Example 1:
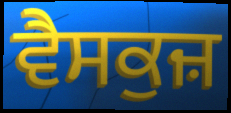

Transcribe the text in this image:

ਵੈਸਕੁਜ਼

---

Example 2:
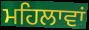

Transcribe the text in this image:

ਮਹਿਲਾਵਾਂ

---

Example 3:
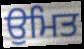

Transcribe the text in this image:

ਉਮਿਤ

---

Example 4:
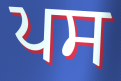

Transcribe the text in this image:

ਪਸ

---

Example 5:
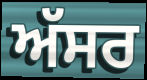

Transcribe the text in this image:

ਅੱਸਰ